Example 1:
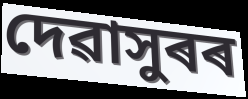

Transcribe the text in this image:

দেৱাসুৰৰ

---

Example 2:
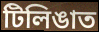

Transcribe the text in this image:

টিলিঙাত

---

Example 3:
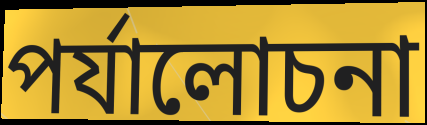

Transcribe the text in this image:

পৰ্যালোচনা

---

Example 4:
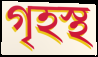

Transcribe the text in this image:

গৃহস্থ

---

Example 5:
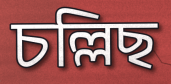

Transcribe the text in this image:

চল্লিছ